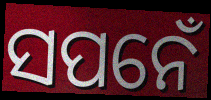
ସପନେଁ